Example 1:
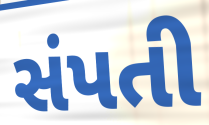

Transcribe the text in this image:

સંપતી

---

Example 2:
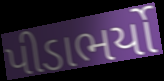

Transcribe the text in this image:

પીડાભર્યો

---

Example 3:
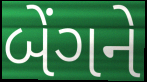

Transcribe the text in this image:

બેંગને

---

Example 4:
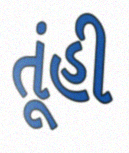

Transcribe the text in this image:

તૂંહી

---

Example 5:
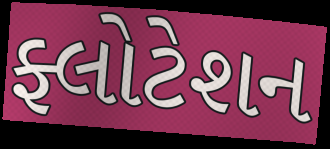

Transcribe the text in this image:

ફ્લોટેશન